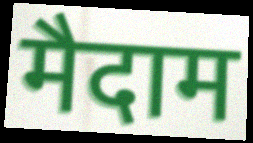
मैदाम